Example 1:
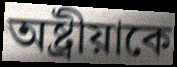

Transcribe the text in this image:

অষ্ট্রীয়াকে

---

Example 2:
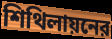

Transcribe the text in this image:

শিথিলায়নের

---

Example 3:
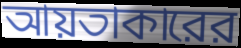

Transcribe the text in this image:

আয়তাকারের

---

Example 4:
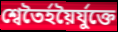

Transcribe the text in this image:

শ্বেতৈর্হয়ৈর্যুক্তে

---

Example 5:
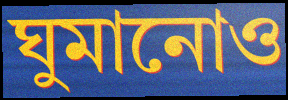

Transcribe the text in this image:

ঘুমানোও